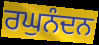
ਰਘੁਨੰਦਨ